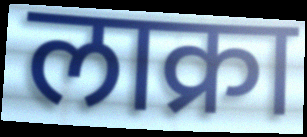
लाक्रा